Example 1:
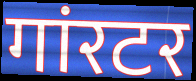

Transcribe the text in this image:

गांरटर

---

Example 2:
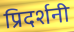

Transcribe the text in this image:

प्रिदर्शनी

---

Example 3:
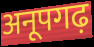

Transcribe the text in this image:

अनूपगढ़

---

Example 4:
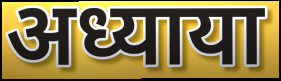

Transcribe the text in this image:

अध्याया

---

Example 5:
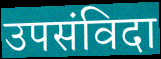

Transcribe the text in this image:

उपसंविदा